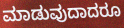
ಮಾಡುವುದಾದರೂ